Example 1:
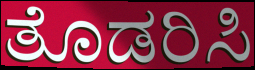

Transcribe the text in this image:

ತೊಡರಿಸಿ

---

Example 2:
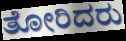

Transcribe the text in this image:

ತೋರಿದರು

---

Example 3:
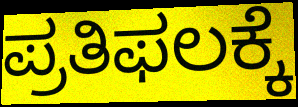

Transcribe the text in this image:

ಪ್ರತಿಫಲಕ್ಕೆ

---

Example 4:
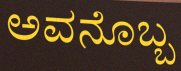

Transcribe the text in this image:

ಅವನೊಬ್ಬ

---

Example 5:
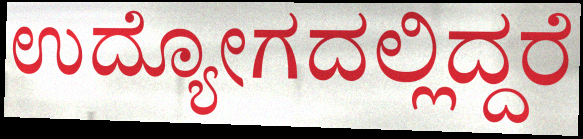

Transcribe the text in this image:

ಉದ್ಯೋಗದಲ್ಲಿದ್ದರೆ